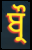
ਬ੍ਰੌ